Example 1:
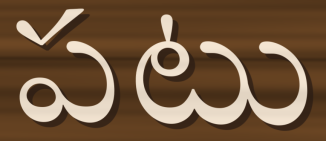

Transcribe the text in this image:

పటు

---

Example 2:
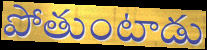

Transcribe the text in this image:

పోతుంటాడు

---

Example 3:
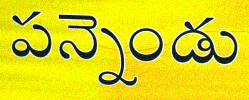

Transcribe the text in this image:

పన్నెండు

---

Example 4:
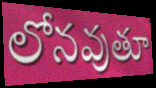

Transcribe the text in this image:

లోనవుతూ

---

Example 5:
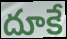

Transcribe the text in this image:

దూకే